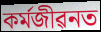
কৰ্মজীৱনত